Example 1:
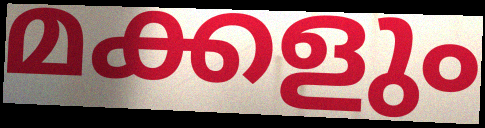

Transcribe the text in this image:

മക്കളും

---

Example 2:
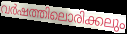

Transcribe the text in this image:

വർഷത്തിലൊരിക്കലും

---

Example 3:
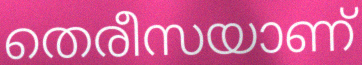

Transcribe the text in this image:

തെരീസയാണ്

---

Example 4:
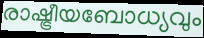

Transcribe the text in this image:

രാഷ്ട്രീയബോധ്യവും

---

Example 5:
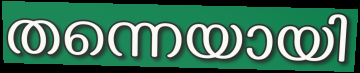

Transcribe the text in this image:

തന്നെയായി